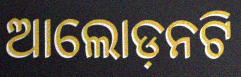
ଆଲୋଡ଼ନଟି